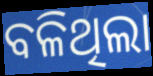
ବଳିଥିଲା